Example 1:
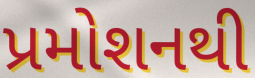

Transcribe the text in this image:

પ્રમોશનથી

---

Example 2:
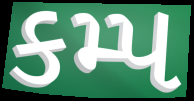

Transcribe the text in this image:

કમ્પ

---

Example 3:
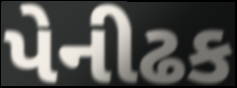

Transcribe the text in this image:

પેનીઢક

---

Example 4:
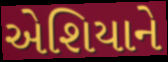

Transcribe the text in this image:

એશિયાને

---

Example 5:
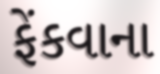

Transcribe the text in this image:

ફેંકવાના